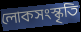
লোকসংস্কৃতি